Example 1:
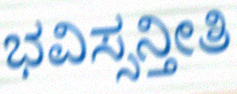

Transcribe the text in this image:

ಭವಿಸ್ಸನ್ತೀತಿ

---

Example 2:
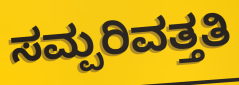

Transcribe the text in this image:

ಸಮ್ಪರಿವತ್ತತಿ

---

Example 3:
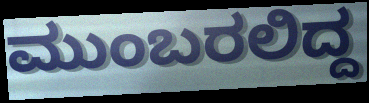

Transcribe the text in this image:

ಮುಂಬರಲಿದ್ದ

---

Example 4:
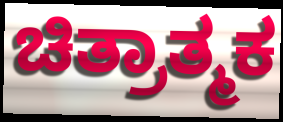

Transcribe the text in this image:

ಚಿತ್ರಾತ್ಮಕ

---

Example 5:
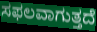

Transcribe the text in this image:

ಸಫಲವಾಗುತ್ತದೆ